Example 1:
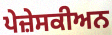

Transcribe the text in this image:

ਪੇਜ਼ੇਸਕੀਅਨ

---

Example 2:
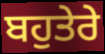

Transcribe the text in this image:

ਬਹੁਤੇਰੇ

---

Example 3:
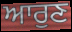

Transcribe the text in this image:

ਆਰੁਣ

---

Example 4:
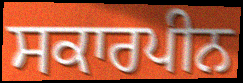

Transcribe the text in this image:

ਸਕਾਰਪੀਨ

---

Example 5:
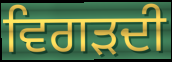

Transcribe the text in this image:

ਵਿਗੜਦੀ